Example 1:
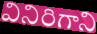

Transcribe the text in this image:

వినిరిగాని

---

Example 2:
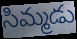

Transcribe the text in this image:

సిమ్మడు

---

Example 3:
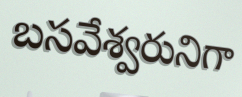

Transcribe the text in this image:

బసవేశ్వరునిగా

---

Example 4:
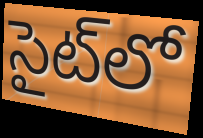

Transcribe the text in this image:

సైట్‌లో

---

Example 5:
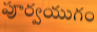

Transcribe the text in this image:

పూర్వయుగం